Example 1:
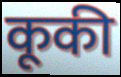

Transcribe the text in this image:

कूकी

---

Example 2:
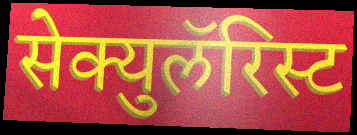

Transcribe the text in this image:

सेक्युलॅरिस्ट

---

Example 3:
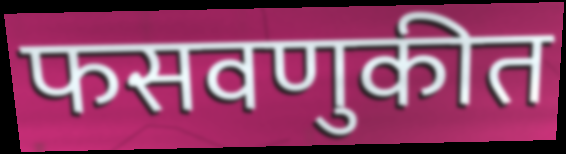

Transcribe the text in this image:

फसवणुकीत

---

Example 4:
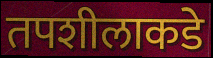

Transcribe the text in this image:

तपशीलाकडे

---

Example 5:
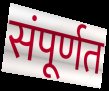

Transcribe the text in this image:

संपूर्णत